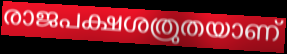
രാജപക്ഷശത്രുതയാണ്